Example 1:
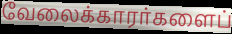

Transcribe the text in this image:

வேலைக்காரர்களைப்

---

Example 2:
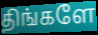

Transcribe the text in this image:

திங்களே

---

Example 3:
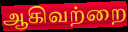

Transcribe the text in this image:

ஆகிவற்றை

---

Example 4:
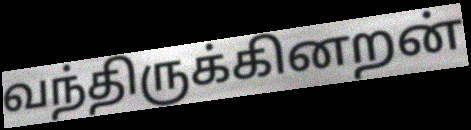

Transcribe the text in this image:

வந்திருக்கினறன்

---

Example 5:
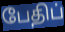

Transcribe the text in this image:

பேதிப்